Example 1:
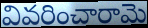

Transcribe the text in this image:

వివరించారామె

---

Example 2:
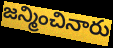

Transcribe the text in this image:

జన్మించినారు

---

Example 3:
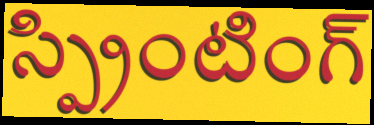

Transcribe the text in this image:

స్ప్రింటింగ్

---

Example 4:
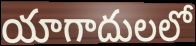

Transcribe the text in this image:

యాగాదులలో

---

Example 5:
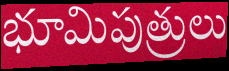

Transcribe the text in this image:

భూమిపుత్రులు